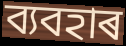
ব্যবহাৰ